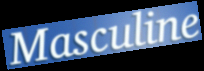
Masculine